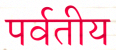
पर्वतीय